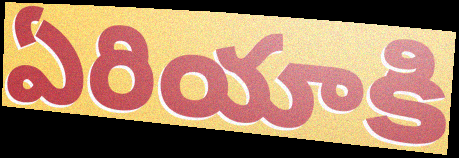
ఏరియాకి